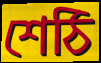
শেঠি